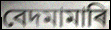
বেদমামাৰি